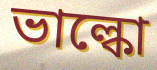
ভাল্কো